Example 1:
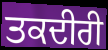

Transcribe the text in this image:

ਤਕਦੀਰੀ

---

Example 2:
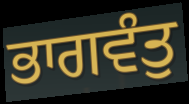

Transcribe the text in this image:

ਭਾਗਵੰਤੁ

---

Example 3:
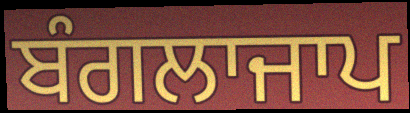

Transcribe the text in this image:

ਬੰਗਲਾਜਾਪ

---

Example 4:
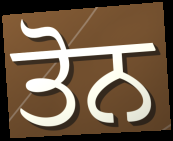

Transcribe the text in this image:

ਤੋਨ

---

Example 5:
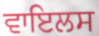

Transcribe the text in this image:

ਵਾਇਲਸ